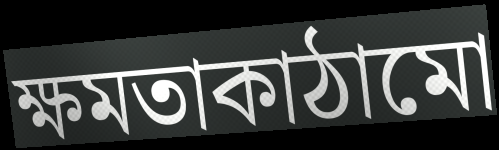
ক্ষমতাকাঠামো